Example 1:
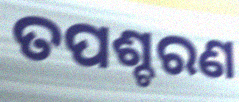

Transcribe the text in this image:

ତପଶ୍ଚରଣ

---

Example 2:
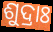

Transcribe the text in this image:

ଶୁଦ୍ରାଃ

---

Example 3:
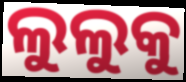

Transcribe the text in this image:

ଲୁଲୁକୁ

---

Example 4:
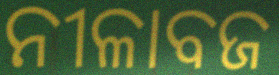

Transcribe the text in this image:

ନୀଳାବଜ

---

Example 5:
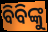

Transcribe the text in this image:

ବିବିଙ୍କୁ